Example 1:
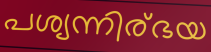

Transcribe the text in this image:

പശ്യന്നിര്ഭയ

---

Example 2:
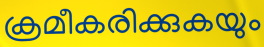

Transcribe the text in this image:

ക്രമീകരിക്കുകയും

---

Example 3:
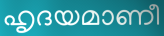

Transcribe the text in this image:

ഹൃദയമാണീ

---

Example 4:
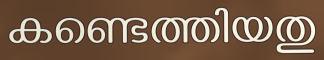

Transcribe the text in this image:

കണ്ടെത്തിയതു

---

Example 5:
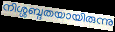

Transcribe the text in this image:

നിശ്ശബ്ദതയായിരുന്നു